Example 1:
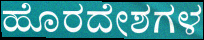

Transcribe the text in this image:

ಹೊರದೇಶಗಳ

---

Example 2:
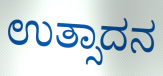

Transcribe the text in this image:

ಉತ್ಸಾದನ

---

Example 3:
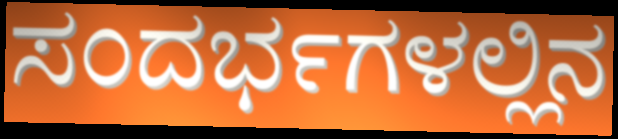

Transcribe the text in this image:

ಸಂದರ್ಭಗಳಲ್ಲಿನ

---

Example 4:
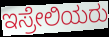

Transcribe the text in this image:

ಇಸ್ರೇಲಿಯರು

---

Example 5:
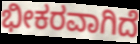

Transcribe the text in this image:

ಭೀಕರವಾಗಿದೆ